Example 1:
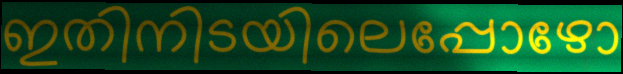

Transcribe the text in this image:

ഇതിനിടയിലെപ്പോഴോ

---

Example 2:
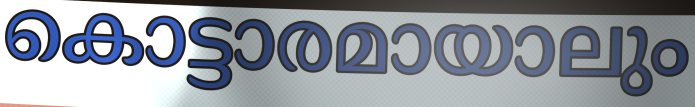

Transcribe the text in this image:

കൊട്ടാരമായാലും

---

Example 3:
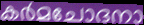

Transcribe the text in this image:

കർമചോദനാ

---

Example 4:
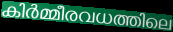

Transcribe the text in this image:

കിർമ്മീരവധത്തിലെ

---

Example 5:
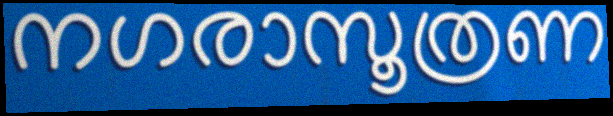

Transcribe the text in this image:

നഗരാസൂത്രണ